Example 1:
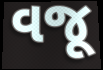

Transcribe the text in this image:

વજૂ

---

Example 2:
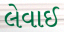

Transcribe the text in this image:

લેવાઈ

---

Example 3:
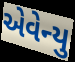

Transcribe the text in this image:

એવેન્યુ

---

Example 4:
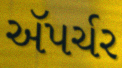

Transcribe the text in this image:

ઍપર્ચર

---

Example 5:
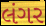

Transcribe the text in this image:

લંગર